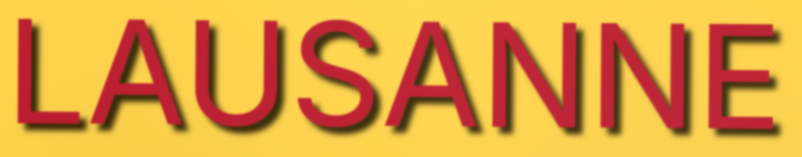
LAUSANNE